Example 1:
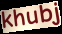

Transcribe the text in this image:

khubj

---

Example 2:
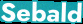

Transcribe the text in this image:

Sebald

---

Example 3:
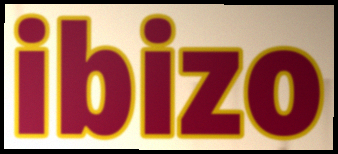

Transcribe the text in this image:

ibizo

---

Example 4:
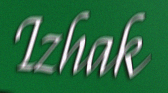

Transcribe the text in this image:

Izhak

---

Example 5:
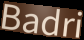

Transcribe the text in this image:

Badri